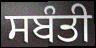
ਸਬੰਤੀ